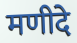
मणीदे